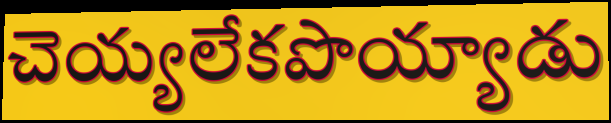
చెయ్యలేకపొయ్యాడు